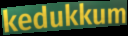
kedukkum